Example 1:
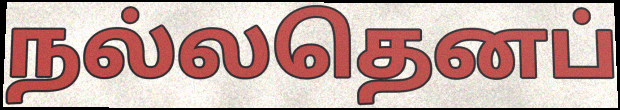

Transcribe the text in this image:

நல்லதெனப்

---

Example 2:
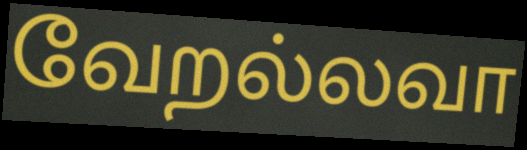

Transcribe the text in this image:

வேறல்லவா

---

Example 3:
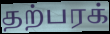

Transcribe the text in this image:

தற்பரக்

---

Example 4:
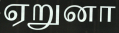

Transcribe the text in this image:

ஏறுனா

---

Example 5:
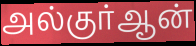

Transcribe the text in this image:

அல்குர்ஆன்